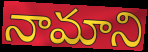
నామాని